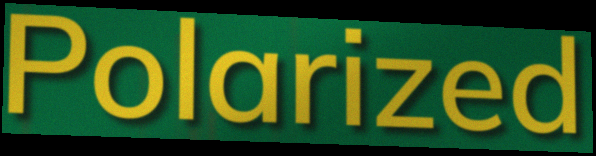
Polarized